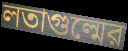
লতাগুল্মের